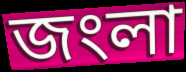
জংলা